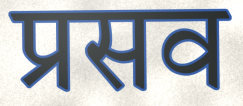
प्रसव